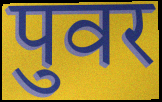
पुवर